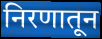
निरणातून